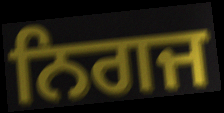
ਨਿਗਜ